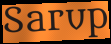
Sarup